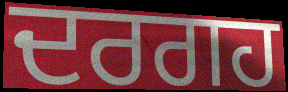
ਦਰਗਹ